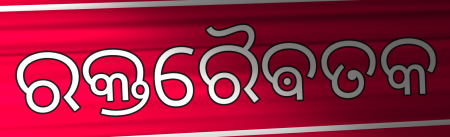
ରକ୍ତରୈଵତକ